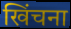
खिंचना